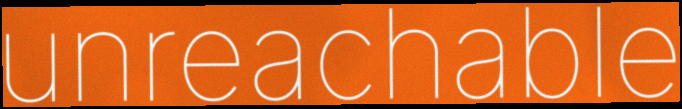
unreachable